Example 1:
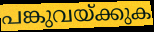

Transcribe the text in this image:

പങ്കുവയ്ക്കുക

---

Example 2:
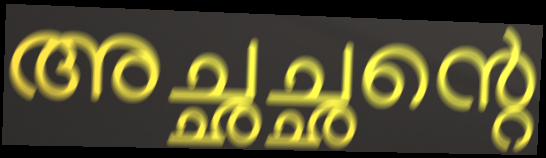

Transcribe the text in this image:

അച്ഛച്ഛന്റെ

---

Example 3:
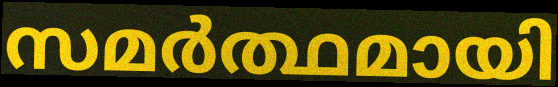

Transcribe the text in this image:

സമർത്ഥമായി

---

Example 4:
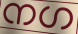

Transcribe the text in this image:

നഗ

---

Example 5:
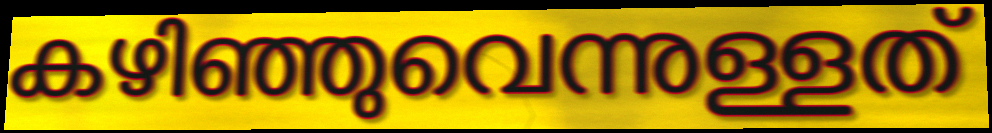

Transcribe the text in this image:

കഴിഞ്ഞുവെന്നുള്ളത്